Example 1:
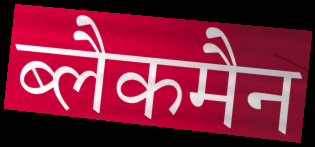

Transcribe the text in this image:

ब्लैकमैन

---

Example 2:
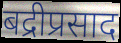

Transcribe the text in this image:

बद्रीप्रसाद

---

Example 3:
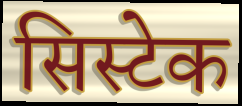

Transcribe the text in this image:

सिस्टेक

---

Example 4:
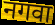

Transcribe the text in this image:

नगवा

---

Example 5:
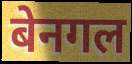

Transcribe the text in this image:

बेनगल